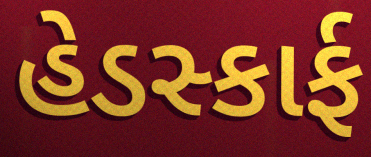
હેડસ્કાર્ફ